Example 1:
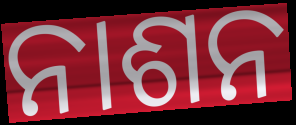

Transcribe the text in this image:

ନାଶନ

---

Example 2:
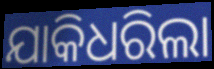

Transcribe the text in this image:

ଯାକିଧରିଲା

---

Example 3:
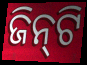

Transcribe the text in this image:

ଜିନ୍‌ଟି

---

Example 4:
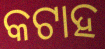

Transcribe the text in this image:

କଟାହ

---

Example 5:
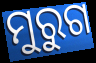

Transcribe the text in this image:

ମୁରୁଗ